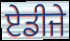
ਏਡੀਜੇ